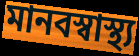
মানবস্বাস্থ্য